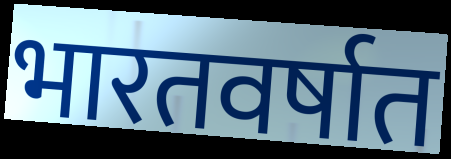
भारतवर्षात